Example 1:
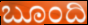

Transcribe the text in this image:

ಬೂಂದಿ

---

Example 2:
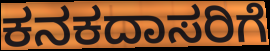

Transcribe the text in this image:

ಕನಕದಾಸರಿಗೆ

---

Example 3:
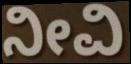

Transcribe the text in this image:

ನೀವಿ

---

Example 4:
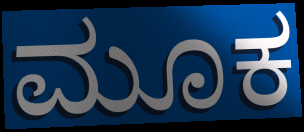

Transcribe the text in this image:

ಮೂಕ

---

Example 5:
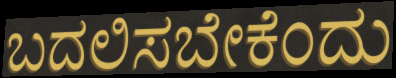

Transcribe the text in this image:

ಬದಲಿಸಬೇಕೆಂದು